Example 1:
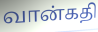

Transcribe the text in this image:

வான்கதி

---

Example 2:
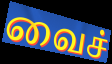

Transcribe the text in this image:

வைச்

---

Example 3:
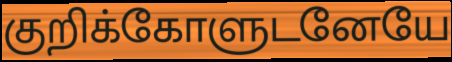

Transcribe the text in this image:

குறிக்கோளுடனேயே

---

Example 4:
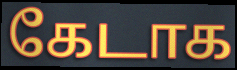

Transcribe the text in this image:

கேடாக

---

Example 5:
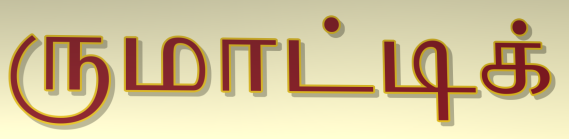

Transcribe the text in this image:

ருமாட்டிக்